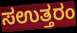
ಸಉತ್ತರಂ